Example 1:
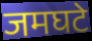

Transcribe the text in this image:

जमघटे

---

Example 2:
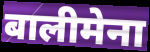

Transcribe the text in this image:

बालीमेना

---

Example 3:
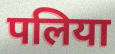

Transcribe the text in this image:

पलिया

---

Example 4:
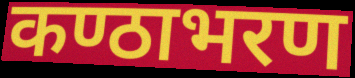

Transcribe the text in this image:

कण्ठाभरण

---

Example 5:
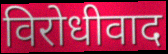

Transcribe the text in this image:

विरोधीवाद